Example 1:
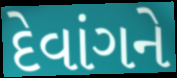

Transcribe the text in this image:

દેવાંગને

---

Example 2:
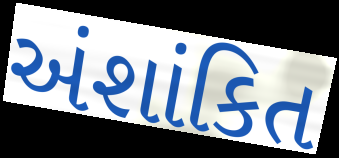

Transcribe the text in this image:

અંશાંકિત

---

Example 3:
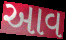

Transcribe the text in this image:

આવ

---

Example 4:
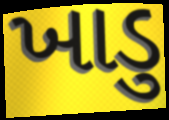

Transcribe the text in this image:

ખાડુ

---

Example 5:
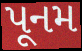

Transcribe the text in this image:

પૂનમ